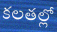
కలతల్లో